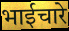
भाईचारे